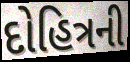
દોહિત્રની